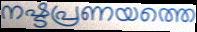
നഷ്ടപ്രണയത്തെ